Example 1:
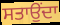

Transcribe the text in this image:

ਸਤਾਉਂਦਾ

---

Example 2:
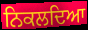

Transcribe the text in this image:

ਨਿਕਲਦਿਆ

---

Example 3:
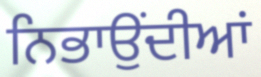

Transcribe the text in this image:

ਨਿਭਾਉਂਦੀਆਂ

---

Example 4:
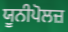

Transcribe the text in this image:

ਯੂਨੀਪੋਲਜ਼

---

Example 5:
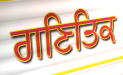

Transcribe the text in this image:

ਗਣਿਤਿਕ